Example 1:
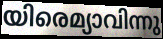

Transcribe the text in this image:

യിരെമ്യാവിന്നു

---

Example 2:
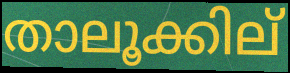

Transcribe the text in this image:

താലൂക്കില്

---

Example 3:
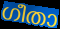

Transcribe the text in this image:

ഗീതാ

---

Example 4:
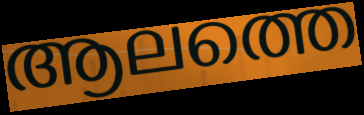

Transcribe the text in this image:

ആലത്തെ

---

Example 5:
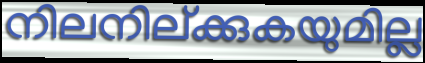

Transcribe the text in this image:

നിലനില്ക്കുകയുമില്ല